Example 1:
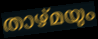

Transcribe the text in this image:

താഴ്മയും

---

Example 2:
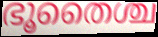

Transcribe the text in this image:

ഭൂതൈശ്ച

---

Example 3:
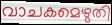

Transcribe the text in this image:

വാചകമെഴുതി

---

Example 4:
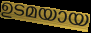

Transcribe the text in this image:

ഉടമയായ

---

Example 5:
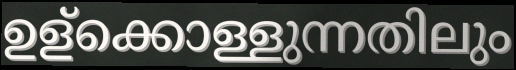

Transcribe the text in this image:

ഉള്ക്കൊള്ളുന്നതിലും